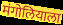
मंगोलियाला